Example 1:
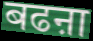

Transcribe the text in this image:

बढऩा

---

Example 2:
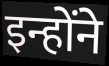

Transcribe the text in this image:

इन्‍होंने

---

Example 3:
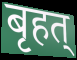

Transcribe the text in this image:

बृहत्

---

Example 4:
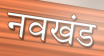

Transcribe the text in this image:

नवखंड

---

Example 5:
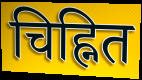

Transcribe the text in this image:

चिह्नित